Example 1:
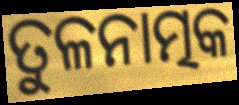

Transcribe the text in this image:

ତୁଳନାତ୍ମକ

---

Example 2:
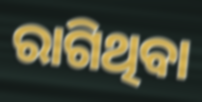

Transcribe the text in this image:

ରାଗିଥିବା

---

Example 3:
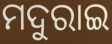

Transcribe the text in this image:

ମଦୁରାଇ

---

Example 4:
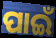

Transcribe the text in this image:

ପାଇଁ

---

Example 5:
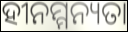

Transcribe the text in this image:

ହୀନମ୍ମନ୍ୟତା